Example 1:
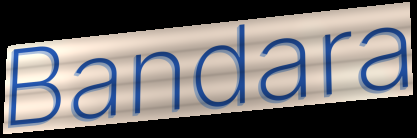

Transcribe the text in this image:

Bandara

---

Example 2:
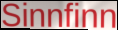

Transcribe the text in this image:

Sinnfinn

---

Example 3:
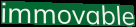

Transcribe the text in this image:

immovable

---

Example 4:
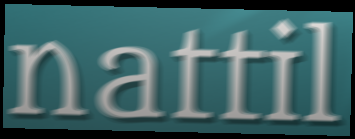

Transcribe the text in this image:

nattil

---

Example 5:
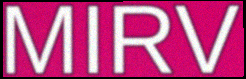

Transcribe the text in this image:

MIRV